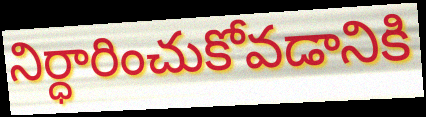
నిర్ధారించుకోవడానికి